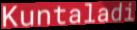
Kuntaladi